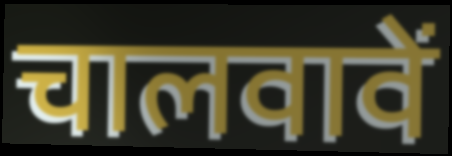
चालवावें